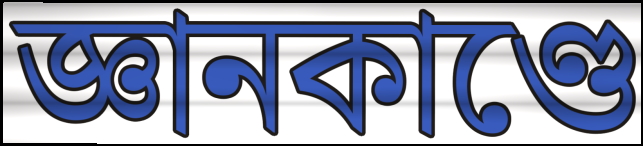
জ্ঞানকাণ্ডে